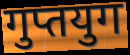
गुप्तयुग